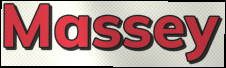
Massey